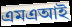
এমএআই